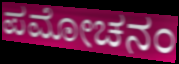
ಪಮೋಚನಂ